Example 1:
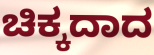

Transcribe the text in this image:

ಚಿಕ್ಕದಾದ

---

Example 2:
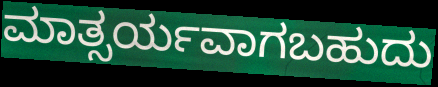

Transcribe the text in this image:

ಮಾತ್ಸರ್ಯವಾಗಬಹುದು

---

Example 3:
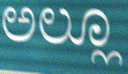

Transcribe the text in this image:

ಅಲ್ಲೂ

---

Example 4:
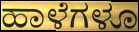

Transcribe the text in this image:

ಹಾಳೆಗಳೂ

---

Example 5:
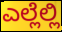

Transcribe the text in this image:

ಎಲ್ಲೆಲ್ಲಿ